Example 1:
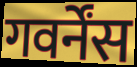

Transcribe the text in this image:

गवर्नेंस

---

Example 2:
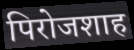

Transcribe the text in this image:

पिरोजशाह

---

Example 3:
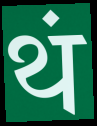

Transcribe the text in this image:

थं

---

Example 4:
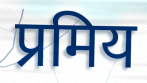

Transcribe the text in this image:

प्रमिय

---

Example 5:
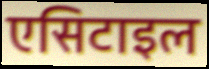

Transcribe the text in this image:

एसिटाइल